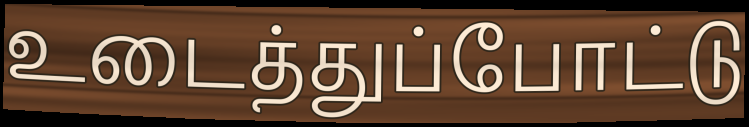
உடைத்துப்போட்டு